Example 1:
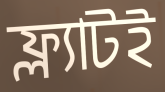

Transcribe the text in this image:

ফ্ল্যাটই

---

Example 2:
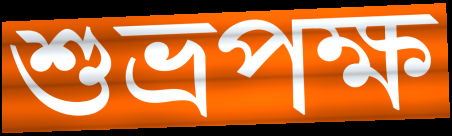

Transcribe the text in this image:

শুভ্রপক্ষ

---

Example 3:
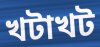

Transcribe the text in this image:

খটাখট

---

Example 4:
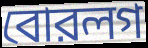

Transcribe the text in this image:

বোরলগ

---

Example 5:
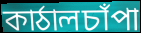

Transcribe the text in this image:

কাঠালচাঁপা